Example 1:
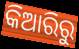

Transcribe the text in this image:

କିଆରିରୁ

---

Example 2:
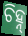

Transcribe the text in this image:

ଚିହ୍ନ୍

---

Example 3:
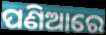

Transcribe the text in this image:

ପଣିଆରେ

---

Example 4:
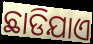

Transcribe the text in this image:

ଛାଡିଯାଏ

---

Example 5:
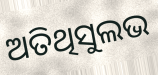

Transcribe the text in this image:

ଅତିଥିସୁଲଭ